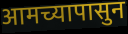
आमच्यापासुन